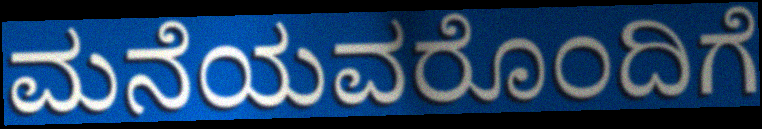
ಮನೆಯವರೊಂದಿಗೆ